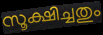
സൂക്ഷിച്ചതും